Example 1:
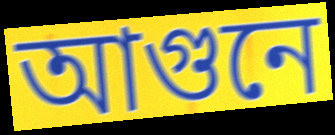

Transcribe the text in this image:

আগুনে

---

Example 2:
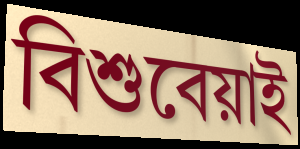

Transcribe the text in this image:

বিশুবেয়াই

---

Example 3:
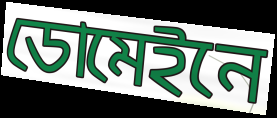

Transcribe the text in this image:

ডোমেইনে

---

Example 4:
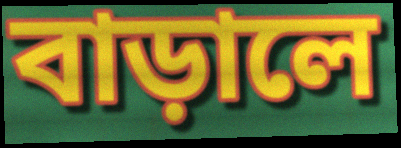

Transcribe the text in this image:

বাড়ালে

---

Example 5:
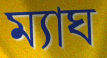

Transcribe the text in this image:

ম্যাঘ